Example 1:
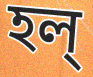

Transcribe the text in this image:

হল্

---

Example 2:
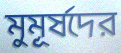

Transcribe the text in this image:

মুমূর্ষদের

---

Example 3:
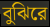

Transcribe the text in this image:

বুঝিরে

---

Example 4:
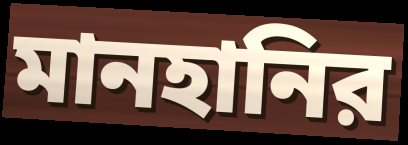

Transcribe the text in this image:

মানহানির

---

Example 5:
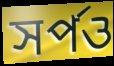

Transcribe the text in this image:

সর্পও